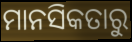
ମାନସିକତାରୁ